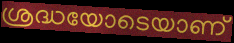
ശ്രദ്ധയോടെയാണ്